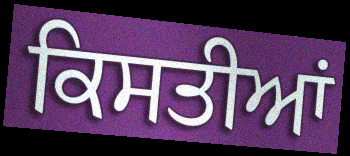
ਕਿਸਤੀਆਂ